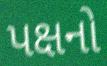
પક્ષનો